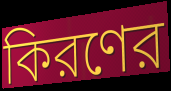
কিরণের